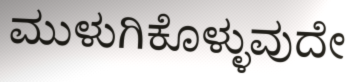
ಮುಳುಗಿಕೊಳ್ಳುವುದೇ